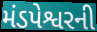
મંડપેશ્વરની